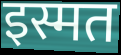
इस्मत